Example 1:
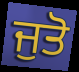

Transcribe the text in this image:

ਜੁਤੋ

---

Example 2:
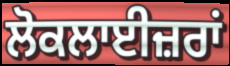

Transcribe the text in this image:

ਲੋਕਲਾਈਜ਼ਰਾਂ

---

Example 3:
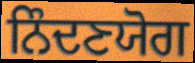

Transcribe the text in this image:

ਨਿੰਦਣਯੋਗ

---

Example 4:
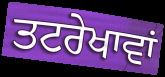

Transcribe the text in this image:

ਤਟਰੇਖਾਵਾਂ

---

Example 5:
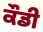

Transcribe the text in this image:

ਕੌਡੀ